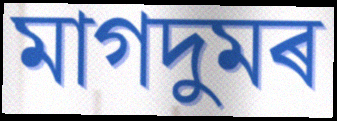
মাগদুমৰ